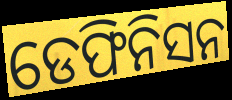
ଡେଫିନିସନ